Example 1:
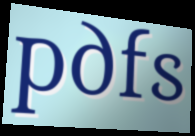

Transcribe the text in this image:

pdfs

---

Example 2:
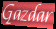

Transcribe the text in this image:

Gazdar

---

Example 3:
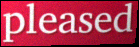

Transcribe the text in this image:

pleased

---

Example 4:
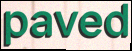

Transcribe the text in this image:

paved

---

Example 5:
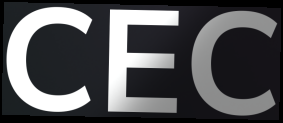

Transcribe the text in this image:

CEC